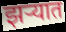
झर्‍यात